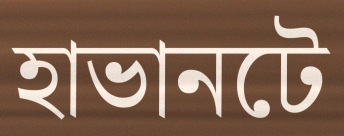
হাভানটে